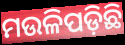
ମଉଳିପଡ଼ିଛି